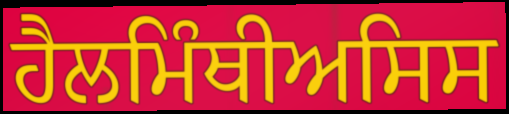
ਹੈਲਮਿੰਥੀਅਸਿਸ